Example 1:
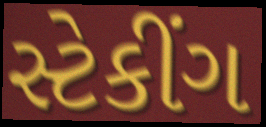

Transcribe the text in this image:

સ્ટેકીંગ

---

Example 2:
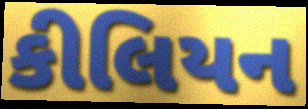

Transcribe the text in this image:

કીલિયન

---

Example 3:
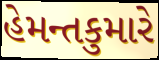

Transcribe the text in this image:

હેમન્તકુમારે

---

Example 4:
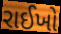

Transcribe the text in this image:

રાઈખો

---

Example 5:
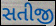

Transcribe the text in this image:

સતીજી